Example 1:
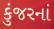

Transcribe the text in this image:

કુંજરનાં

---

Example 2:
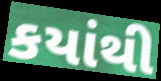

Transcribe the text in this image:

કયાંથી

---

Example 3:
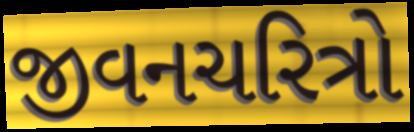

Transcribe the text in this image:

જીવનચરિત્રો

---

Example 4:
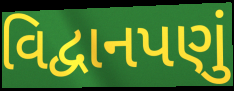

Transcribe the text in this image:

વિદ્વાનપણું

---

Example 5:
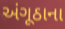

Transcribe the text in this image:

અંગૂઠાના